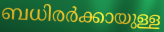
ബധിരർക്കായുള്ള